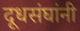
दूधसंघांनी